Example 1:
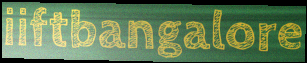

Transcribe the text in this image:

iiftbangalore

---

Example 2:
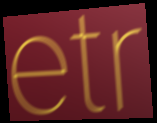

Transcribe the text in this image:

etr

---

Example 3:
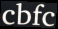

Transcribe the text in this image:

cbfc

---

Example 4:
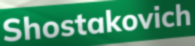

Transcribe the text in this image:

Shostakovich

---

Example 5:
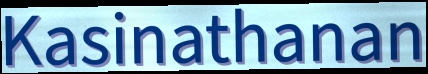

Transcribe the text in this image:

Kasinathanan